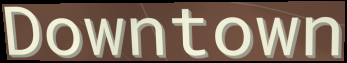
Downtown